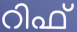
റിഫ്